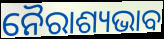
ନୈରାଶ୍ୟଭାବ